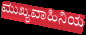
ಮುಖ್ಯವಾಹಿನಿಯ